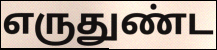
எருதுண்ட